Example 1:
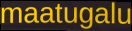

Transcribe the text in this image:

maatugalu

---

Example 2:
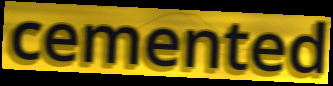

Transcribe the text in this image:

cemented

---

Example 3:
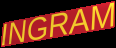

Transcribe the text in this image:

INGRAM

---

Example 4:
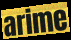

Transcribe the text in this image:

arime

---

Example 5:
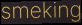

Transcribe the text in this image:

smeking